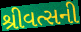
શ્રીવત્સની